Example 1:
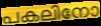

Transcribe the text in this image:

പകലിനോ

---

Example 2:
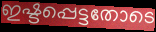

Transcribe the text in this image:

ഇഷ്ടപ്പെട്ടതോടെ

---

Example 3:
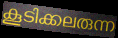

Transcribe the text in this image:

കൂടിക്കലരുന്ന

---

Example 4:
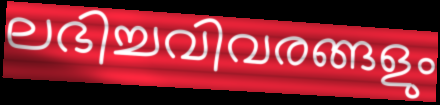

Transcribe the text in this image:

ലഭിച്ചവിവരങ്ങളും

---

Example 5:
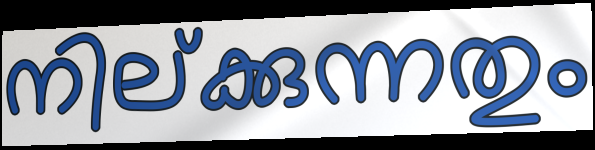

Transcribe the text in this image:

നില്ക്കുന്നതും